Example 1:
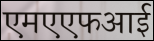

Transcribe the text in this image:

एमएएफआई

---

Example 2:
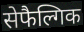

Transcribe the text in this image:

सेफैल्गिक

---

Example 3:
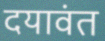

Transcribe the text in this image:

दयावंत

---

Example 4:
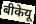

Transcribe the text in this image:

बीकेयू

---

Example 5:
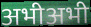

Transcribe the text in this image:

अभीअभी